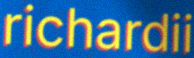
richardii